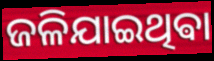
ଜଳିଯାଇଥିଵା